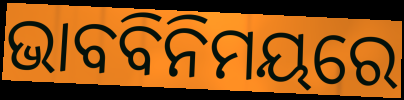
ଭାବବିନିମୟରେ